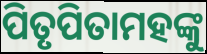
ପିତୃପିତାମହଙ୍କୁ